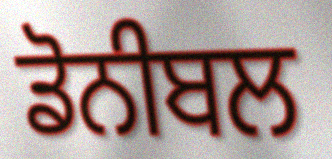
ਡੋਨੀਬਲ